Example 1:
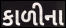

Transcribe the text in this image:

કાળીના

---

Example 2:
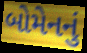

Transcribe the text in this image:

બોમેનનું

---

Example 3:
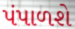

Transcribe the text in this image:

પંપાળશે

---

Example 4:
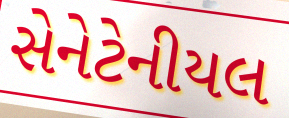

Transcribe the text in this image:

સેનેટેનીયલ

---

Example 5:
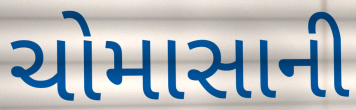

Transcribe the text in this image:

ચોમાસાની